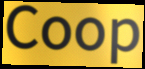
Coop